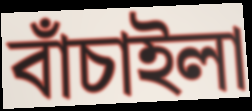
বাঁচাইলা